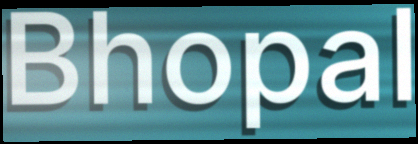
Bhopal